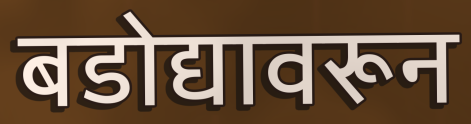
बडोद्यावरून